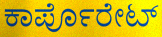
ಕಾರ್ಪೊರೇಟ್